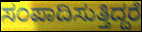
ಸಂಪಾದಿಸುತ್ತಿದ್ದರೆ